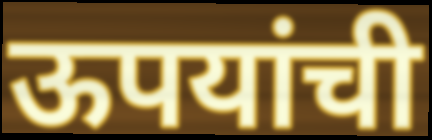
ऊपयांची